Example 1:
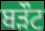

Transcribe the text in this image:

ਬੜੌਟ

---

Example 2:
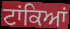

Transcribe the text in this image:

ਟਾਂਕਿਆਂ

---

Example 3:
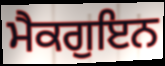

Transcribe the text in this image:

ਮੈਕਗੁਇਨ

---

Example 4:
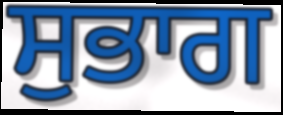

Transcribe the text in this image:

ਸੁਭਾਗ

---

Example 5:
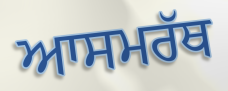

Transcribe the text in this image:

ਆਸਮਰੱਥ